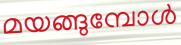
മയങ്ങുമ്പോൾ